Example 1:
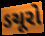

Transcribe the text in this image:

ડચૂરો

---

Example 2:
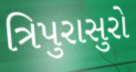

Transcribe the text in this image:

ત્રિપુરાસુરો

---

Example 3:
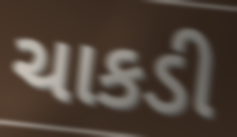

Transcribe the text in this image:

ચાકડી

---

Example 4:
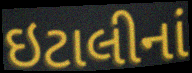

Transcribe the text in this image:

ઇટાલીનાં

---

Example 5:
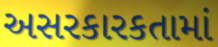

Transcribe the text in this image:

અસરકારકતામાં